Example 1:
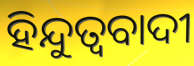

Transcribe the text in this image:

ହିନ୍ଦୁତ୍ବବାଦୀ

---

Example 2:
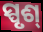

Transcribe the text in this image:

ସ୍ପୃଶ୍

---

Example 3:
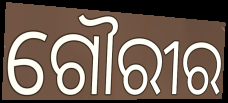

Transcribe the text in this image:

ଗୌରୀର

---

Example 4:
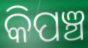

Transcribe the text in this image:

କିପଞ୍ଚ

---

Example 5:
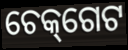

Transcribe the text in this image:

ଚେକ୍‌ଗେଟ